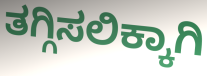
ತಗ್ಗಿಸಲಿಕ್ಕಾಗಿ